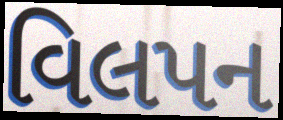
વિલપન